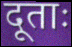
दूताः